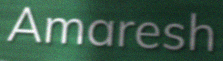
Amaresh